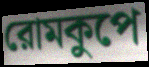
রোমকুপে